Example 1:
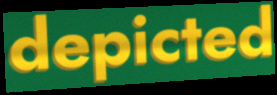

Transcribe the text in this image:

depicted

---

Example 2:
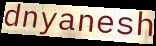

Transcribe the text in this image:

dnyanesh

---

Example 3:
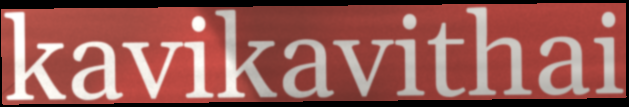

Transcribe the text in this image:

kavikavithai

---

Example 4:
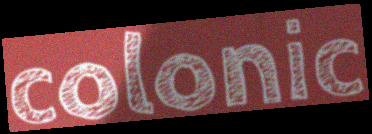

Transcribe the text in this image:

colonic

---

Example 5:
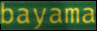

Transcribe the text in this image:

bayama